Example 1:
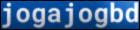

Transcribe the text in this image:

jogajogbd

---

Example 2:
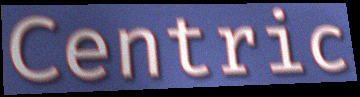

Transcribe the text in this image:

Centric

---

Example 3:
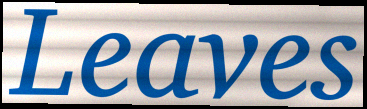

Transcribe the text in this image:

Leaves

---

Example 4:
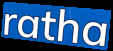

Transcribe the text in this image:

ratha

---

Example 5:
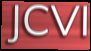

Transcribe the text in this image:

JCVI